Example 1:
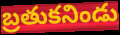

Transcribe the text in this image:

బ్రతుకనిండు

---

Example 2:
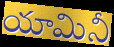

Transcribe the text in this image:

యామినీ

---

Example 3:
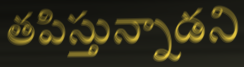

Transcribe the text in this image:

తపిస్తున్నాడని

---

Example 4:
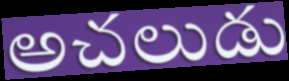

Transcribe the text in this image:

అచలుడు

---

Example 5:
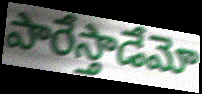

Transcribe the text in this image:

పారేస్తాడేమో